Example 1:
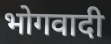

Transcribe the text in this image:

भोगवादी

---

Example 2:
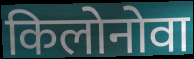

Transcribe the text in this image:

किलोनोवा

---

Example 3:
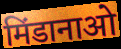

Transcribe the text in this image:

मिंडानाओ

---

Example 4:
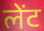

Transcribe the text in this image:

लेंट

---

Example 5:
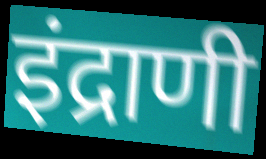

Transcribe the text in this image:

इंद्राणी